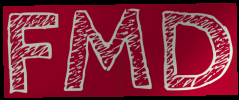
FMD